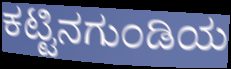
ಕಟ್ಟಿನಗುಂಡಿಯ